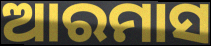
ଆରମାସ